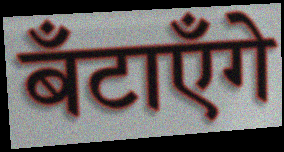
बँटाएँगे